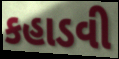
કહાડવી